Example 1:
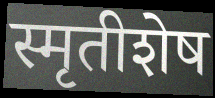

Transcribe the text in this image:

स्मृतीशेष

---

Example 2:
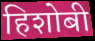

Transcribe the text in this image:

हिशोबी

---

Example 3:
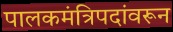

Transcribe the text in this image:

पालकमंत्रिपदांवरून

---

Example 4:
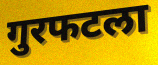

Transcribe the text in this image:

गुरफटला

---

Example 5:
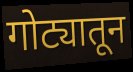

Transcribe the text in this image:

गोट्यातून